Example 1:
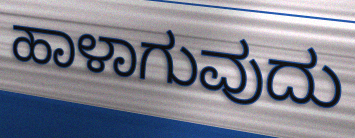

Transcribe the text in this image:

ಹಾಳಾಗುವುದು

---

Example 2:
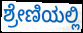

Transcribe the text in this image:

ಶ್ರೇಣಿಯಲ್ಲಿ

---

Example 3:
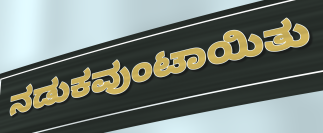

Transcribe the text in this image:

ನಡುಕವುಂಟಾಯಿತು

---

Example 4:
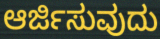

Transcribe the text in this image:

ಆರ್ಜಿಸುವುದು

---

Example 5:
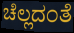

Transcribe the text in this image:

ಚೆಲ್ಲದಂತೆ